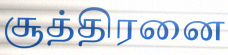
சூத்திரனை